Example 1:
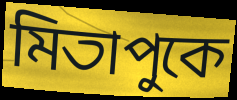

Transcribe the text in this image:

মিতাপুকে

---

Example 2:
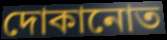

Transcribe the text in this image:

দোকানোত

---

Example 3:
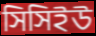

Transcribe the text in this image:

সিসিইউ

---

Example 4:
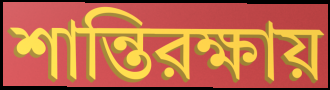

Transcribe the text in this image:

শান্তিরক্ষায়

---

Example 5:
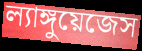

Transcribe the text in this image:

ল্যাঙ্গুয়েজেস